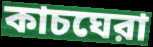
কাচঘেরা